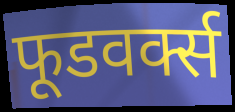
फूडवर्क्स